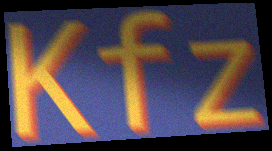
Kfz